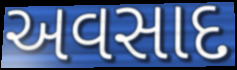
અવસાદ